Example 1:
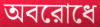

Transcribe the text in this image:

অবরোধে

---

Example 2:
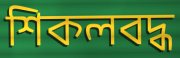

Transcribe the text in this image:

শিকলবদ্ধ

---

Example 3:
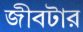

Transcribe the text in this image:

জীবটার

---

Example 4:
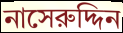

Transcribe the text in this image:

নাসেরুদ্দিন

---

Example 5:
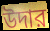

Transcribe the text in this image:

উদার